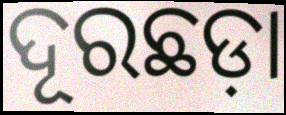
ଦୂରଛଡ଼ା